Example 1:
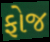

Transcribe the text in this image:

ફોજ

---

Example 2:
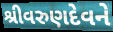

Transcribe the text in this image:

શ્રીવરુણદેવને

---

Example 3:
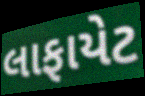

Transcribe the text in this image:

લાફાયેટ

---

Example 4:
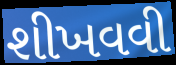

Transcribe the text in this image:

શીખવવી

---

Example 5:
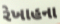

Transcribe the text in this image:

રેખાહના